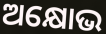
ଅକ୍ଷୋଭ